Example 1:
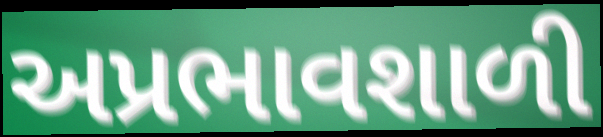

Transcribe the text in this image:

અપ્રભાવશાળી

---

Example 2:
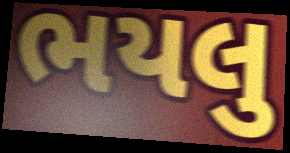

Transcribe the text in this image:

ભયલુ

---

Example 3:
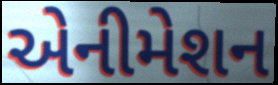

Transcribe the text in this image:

એનીમેશન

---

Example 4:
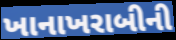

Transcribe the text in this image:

ખાનાખરાબીની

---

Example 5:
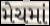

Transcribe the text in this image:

મેચમાં